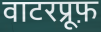
वाटरप्रूफ़